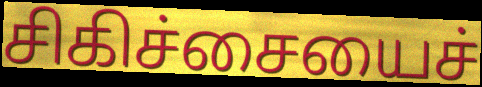
சிகிச்சையைச்